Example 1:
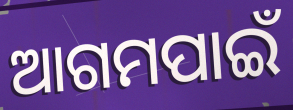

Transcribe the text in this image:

ଆଗମପାଇଁ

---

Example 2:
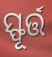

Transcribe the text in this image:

ସ୍ଫୂର୍ତ୍ତ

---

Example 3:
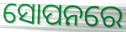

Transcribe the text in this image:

ସୋପନରେ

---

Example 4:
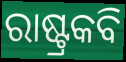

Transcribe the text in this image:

ରାଷ୍ଟ୍ରକବି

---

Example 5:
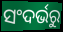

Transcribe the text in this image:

ସଂଦର୍ଭରୁ